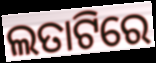
ଲତାଟିରେ